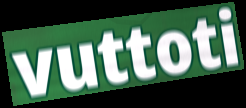
vuttoti